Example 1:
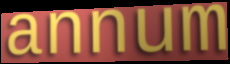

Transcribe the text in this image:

annum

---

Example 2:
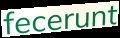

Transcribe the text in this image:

fecerunt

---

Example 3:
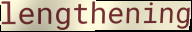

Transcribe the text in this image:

lengthening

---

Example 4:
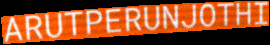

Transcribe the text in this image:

ARUTPERUNJOTHI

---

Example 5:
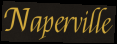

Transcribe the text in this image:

Naperville